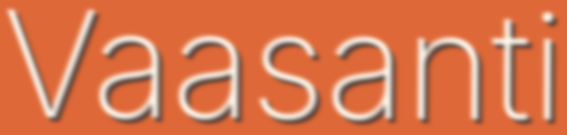
Vaasanti